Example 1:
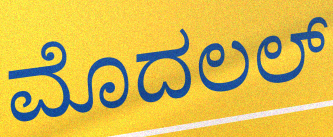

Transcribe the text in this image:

ಮೊದಲಲ್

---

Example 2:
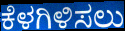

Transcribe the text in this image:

ಕೆಳಗಿಳಿಸಲು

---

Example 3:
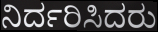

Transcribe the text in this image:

ನಿರ್ದರಿಸಿದರು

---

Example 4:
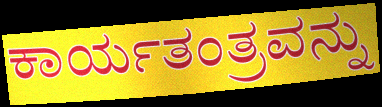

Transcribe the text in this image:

ಕಾರ್ಯತಂತ್ರವನ್ನು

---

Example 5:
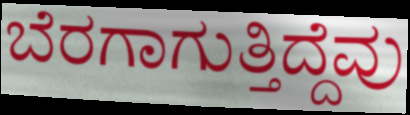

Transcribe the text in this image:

ಬೆರಗಾಗುತ್ತಿದ್ದೆವು